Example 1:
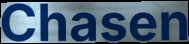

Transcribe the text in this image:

Chasen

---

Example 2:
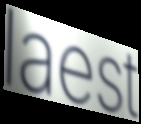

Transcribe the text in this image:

laest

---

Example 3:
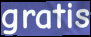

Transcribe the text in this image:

gratis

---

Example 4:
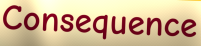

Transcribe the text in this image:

Consequence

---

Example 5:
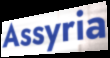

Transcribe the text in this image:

Assyria